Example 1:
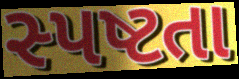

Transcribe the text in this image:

સ્પષ્ટતા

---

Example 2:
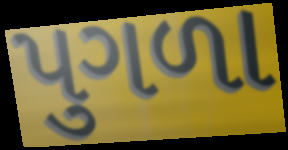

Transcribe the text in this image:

પુગળા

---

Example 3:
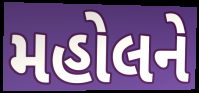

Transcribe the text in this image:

મહોલને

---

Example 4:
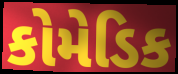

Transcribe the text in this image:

કોમેડિક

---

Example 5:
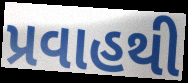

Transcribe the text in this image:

પ્રવાહથી